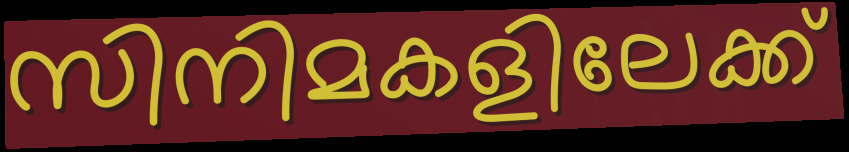
സിനിമകളിലേക്ക്